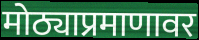
मोठ्याप्रमाणावर